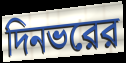
দিনভরের